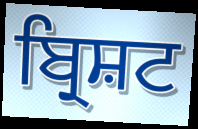
ਬ੍ਰਿਸ਼ਟ